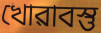
খোৱাবস্তু